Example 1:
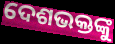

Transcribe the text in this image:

ଦେଶଭକ୍ତଙ୍କୁ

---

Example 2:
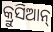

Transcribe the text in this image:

କ୍ରୁସିଆନ୍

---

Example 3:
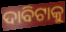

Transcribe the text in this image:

ଦାବିଟାକୁ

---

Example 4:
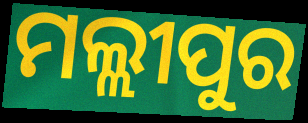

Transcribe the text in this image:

ମଲ୍ଲୀପୁର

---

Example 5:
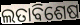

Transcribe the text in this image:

ଲତାବିଶେଷ